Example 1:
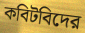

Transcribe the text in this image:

কবিটবিদের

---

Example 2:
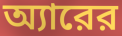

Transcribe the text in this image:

অ্যারের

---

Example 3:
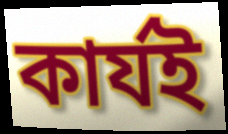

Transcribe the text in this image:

কার্যই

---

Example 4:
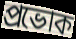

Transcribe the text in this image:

প্রভোক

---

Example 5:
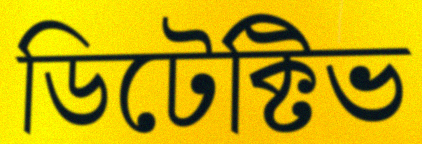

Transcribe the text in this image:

ডিটেক্টিভ